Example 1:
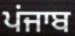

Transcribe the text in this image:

ਪਂਜਾਬ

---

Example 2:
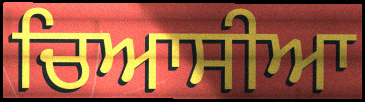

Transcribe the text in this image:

ਚਿਆਸੀਆ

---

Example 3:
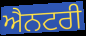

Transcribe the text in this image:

ਐਨਟਰੀ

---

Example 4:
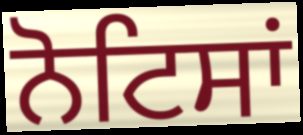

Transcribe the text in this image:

ਨੋਟਿਸਾਂ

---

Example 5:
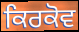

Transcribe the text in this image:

ਕਿਰਕੋਵ